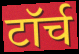
टॉर्च